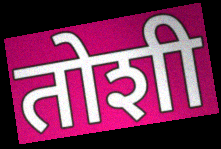
तोशी